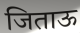
जिताऊ